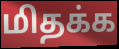
மிதக்க